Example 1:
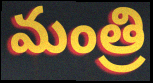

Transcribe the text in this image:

మంత్రి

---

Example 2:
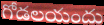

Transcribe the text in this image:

గోడలయందు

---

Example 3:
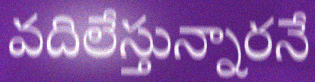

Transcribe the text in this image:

వదిలేస్తున్నారనే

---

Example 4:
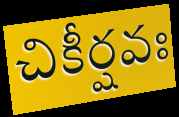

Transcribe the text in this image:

చికీర్షవః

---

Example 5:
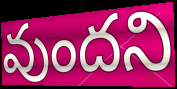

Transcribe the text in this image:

వుందని